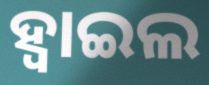
ହ୍ବାଇଲ